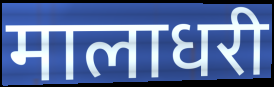
मालाधरी